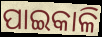
ପାଇକାଳି